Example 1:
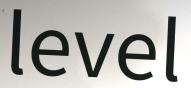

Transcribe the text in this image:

level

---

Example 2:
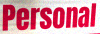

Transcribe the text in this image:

Personal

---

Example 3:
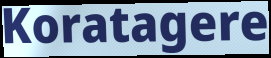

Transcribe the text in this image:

Koratagere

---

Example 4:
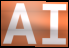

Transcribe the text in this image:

AI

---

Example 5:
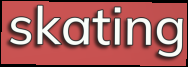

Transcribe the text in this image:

skating